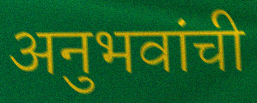
अनुभवांची